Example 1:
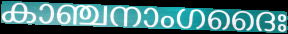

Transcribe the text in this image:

കാഞ്ചനാംഗദൈഃ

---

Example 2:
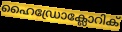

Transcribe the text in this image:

ഹൈഡ്രോക്ലോറിക്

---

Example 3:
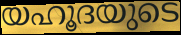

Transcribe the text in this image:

യഹൂദയുടെ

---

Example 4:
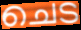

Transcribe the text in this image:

ചെട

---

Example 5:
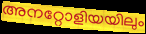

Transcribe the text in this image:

അനറ്റോളിയയിലും